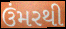
ઉંમરથી